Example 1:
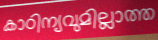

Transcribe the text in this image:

കാഠിന്യവുമില്ലാത്ത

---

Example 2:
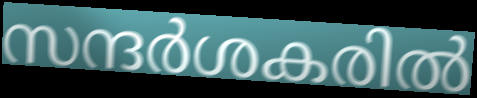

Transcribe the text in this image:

സന്ദർശകരിൽ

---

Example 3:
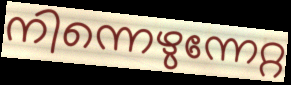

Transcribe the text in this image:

നിന്നെഴുന്നേറ്റ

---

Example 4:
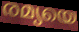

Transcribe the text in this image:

രമ്യയെ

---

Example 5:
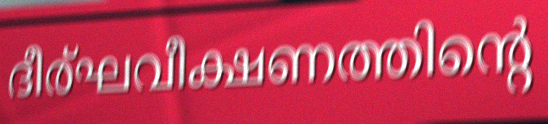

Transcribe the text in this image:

ദീര്ഘവീക്ഷണത്തിന്റെ